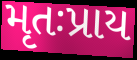
મૃતઃપ્રાય